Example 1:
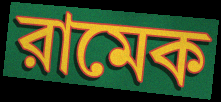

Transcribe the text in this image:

রামেক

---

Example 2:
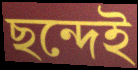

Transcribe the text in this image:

ছন্দেই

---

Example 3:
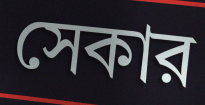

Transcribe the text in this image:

সেকার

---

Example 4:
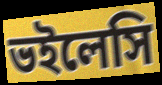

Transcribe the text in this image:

ভইলেসি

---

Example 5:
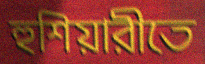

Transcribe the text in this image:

হুশিয়ারীতে